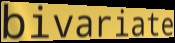
bivariate